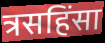
त्रसहिंसा